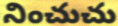
నించుచు